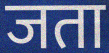
जता